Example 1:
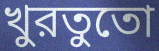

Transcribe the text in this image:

খুরতুতো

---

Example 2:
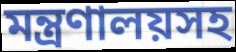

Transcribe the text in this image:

মন্ত্রণালয়সহ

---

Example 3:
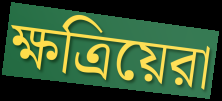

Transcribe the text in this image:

ক্ষত্রিয়েরা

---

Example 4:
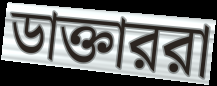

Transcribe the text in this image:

ডাক্তাররা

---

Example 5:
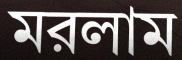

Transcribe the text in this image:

মরলাম